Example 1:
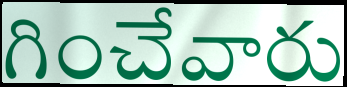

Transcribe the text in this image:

గించేవారు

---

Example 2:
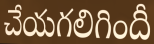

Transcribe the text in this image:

చేయగలిగిందీ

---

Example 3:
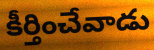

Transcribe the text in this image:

కీర్తించేవాడు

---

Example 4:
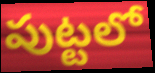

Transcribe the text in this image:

పుట్టలో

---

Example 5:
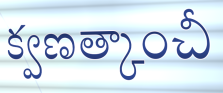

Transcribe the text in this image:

క్వణత్కాంచీ